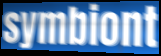
symbiont